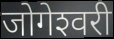
जोगेश्‍वरी